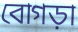
বোগড়া